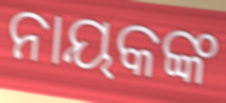
ନାୟକଙ୍କ